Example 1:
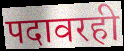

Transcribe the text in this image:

पदावरही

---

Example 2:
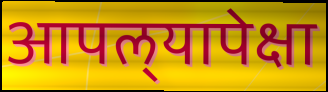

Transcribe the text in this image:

आपल्यापेक्षा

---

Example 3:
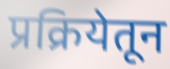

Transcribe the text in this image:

प्रक्रियेतून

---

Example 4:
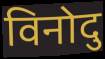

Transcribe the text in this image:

विनोदु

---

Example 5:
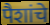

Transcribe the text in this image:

पैशांचे